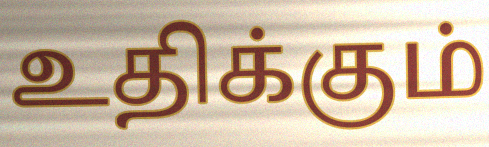
உதிக்கும்